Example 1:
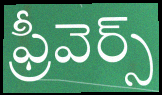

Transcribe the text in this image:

ఫ్రీవెర్స్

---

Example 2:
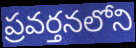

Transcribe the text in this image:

ప్రవర్తనలోని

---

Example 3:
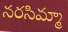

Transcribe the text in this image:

నరసిమ్మా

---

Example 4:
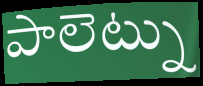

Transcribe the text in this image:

పాలెట్ను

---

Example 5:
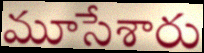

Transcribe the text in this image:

మూసేశారు